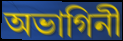
অভাগিনী